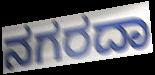
ನಗರದಾ